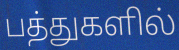
பத்துகளில்